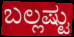
ಬಲ್ಲಷ್ಟು